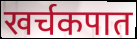
खर्चकपात